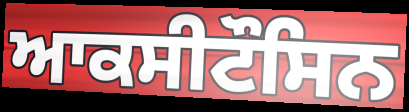
ਆਕਸੀਟੌਸਿਨ